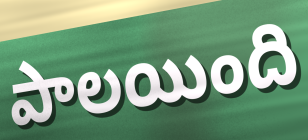
పాలయింది